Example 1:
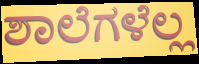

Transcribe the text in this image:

ಶಾಲೆಗಳೆಲ್ಲ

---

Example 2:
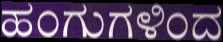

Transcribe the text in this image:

ಹಂಗುಗಳಿಂದ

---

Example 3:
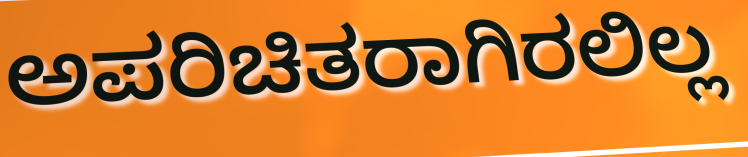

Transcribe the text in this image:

ಅಪರಿಚಿತರಾಗಿರಲಿಲ್ಲ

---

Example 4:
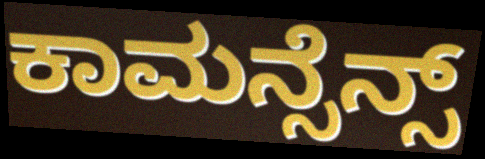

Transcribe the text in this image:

ಕಾಮನ್ಸೆನ್ಸ್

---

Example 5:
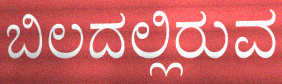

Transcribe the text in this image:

ಬಿಲದಲ್ಲಿರುವ